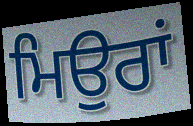
ਮਿਉਰਾਂ